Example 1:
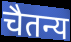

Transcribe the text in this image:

चैतन्य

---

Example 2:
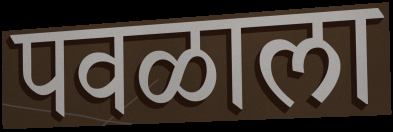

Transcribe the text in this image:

पवळाला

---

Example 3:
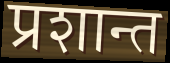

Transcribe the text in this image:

प्रशान्त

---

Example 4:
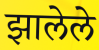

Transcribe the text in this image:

झालेले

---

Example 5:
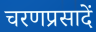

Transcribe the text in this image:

चरणप्रसादें